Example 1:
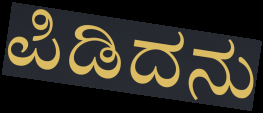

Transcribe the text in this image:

ಪಿಡಿದನು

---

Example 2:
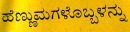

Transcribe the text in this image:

ಹೆಣ್ಣುಮಗಳೊಬ್ಬಳನ್ನು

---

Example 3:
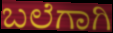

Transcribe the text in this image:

ಬಲೆಗಾಗಿ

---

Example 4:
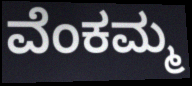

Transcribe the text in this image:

ವೆಂಕಮ್ಮ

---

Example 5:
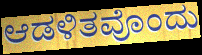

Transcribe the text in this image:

ಆಡಳಿತವೊಂದು